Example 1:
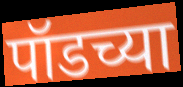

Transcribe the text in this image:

पॉडच्या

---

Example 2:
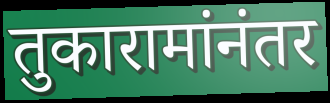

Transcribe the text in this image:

तुकारामांनंतर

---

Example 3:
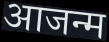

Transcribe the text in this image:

आजन्म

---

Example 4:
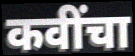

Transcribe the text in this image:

कवींचा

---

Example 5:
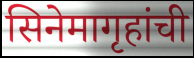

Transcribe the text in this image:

सिनेमागृहांची